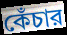
কেঁচার